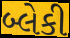
બ્લેકી